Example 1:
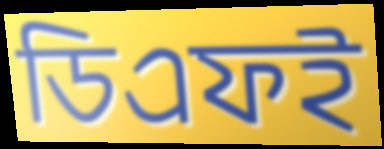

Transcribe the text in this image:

ডিএফই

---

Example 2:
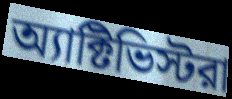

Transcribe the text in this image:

অ্যাক্টিভিস্টরা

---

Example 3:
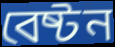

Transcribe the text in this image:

বেষ্টন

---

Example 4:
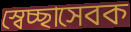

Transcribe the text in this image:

স্বেচ্ছাসেবক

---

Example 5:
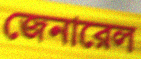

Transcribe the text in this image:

জেনারেল